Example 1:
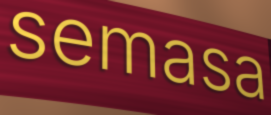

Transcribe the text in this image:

semasa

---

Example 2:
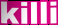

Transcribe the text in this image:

killi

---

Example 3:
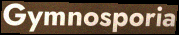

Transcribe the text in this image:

Gymnosporia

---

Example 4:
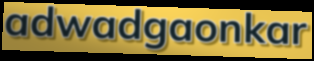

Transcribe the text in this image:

adwadgaonkar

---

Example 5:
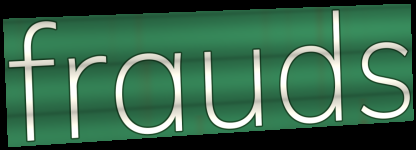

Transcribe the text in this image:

frauds